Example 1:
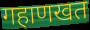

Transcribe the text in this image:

गहाणखत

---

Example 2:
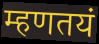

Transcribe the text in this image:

म्हणतयं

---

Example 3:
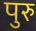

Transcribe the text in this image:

पुरु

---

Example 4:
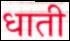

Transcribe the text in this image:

धाती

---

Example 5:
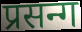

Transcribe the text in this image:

प्रसन्ग